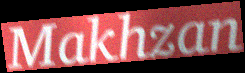
Makhzan